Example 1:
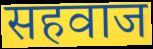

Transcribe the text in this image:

सहवाज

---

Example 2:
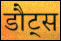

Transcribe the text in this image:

डौट्स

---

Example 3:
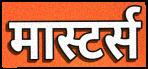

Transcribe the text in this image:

मास्टर्स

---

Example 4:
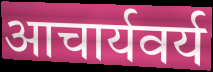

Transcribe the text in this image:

आचार्यवर्य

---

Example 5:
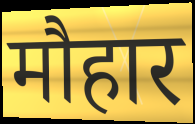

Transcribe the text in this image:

मौहार